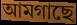
আমগাছে